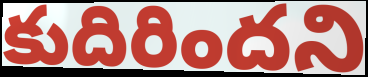
కుదిరిందని